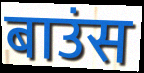
बाउंस